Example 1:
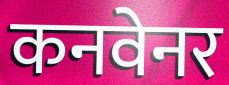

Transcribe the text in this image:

कनवेनर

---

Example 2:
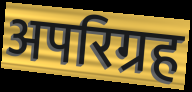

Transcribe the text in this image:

अपरिग्रह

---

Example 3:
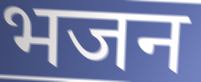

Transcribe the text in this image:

भजन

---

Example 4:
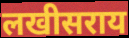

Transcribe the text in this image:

लखीसराय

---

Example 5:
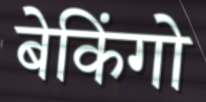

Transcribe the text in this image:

बेकिंगो